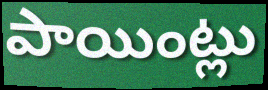
పాయింట్లు